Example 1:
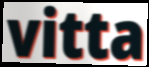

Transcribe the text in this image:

vitta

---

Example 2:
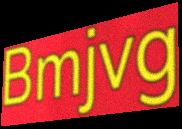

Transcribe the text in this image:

Bmjvg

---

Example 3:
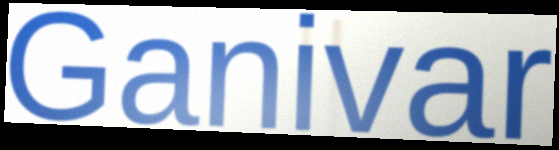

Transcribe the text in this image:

Ganivar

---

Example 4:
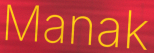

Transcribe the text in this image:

Manak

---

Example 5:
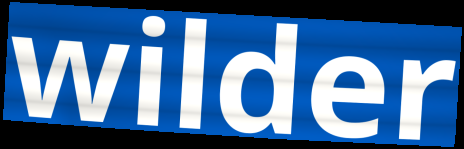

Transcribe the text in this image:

wilder